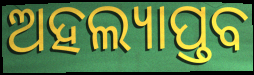
ଅହଲ୍ୟାପ୍ତବ